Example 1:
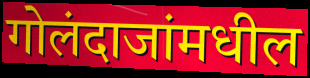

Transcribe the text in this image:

गोलंदाजांमधील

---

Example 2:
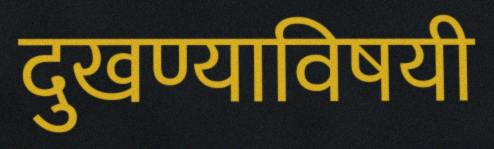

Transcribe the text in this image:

दुखण्याविषयी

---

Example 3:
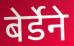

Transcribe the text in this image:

बेर्डेने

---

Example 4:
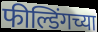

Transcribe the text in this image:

फील्डिंगच्या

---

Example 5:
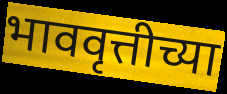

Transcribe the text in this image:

भाववृत्तीच्या